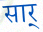
सार्